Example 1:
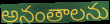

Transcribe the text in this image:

అనంతాలను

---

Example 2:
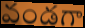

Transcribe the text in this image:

వండగా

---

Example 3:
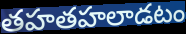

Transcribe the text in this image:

తహతహలాడటం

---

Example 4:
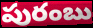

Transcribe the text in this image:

పురంబు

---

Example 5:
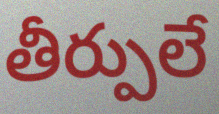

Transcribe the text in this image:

తీర్పులే